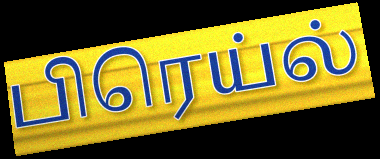
பிரெய்ல்